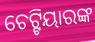
ଚେଟ୍ଟିୟାରଙ୍କ